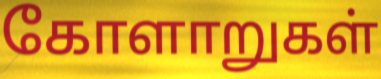
கோளாறுகள்